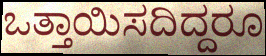
ಒತ್ತಾಯಿಸದಿದ್ದರೂ